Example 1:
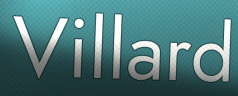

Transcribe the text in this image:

Villard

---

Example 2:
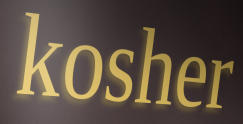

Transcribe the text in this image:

kosher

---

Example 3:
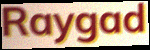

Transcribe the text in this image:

Raygad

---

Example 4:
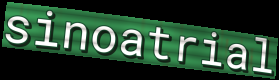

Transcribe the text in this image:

sinoatrial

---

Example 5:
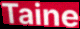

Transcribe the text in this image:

Taine